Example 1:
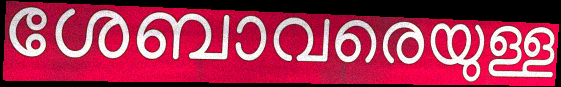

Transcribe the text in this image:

ശേബാവരെയുള്ള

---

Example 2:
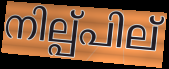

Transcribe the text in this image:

നില്പ്പില്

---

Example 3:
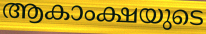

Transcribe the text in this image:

ആകാംക്ഷയുടെ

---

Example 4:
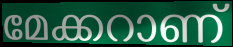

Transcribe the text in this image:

മേക്കറാണ്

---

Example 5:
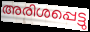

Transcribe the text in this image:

അരിശപ്പെട്ടു